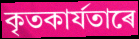
কৃতকাৰ্যতাৰে